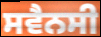
ਸਵੈਨਸੀ